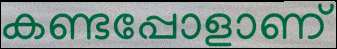
കണ്ടപ്പോളാണ്